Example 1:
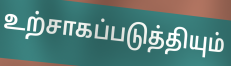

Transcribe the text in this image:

உற்சாகப்படுத்தியும்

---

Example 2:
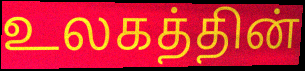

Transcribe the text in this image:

உலகத்தின்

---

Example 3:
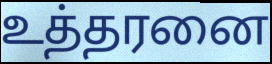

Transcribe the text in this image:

உத்தரனை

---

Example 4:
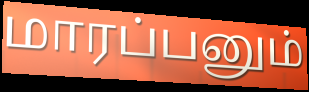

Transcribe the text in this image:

மாரப்பனும்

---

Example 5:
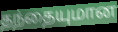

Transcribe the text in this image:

தந்தையுமான